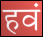
हवं